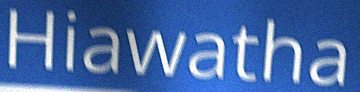
Hiawatha